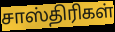
சாஸ்திரிகள்